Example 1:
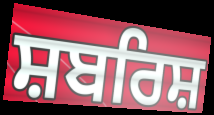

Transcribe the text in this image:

ਸ਼ਬਰਿਸ਼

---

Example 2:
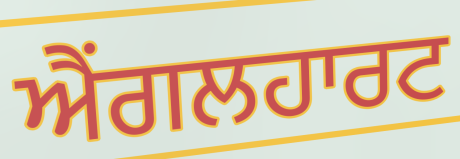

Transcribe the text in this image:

ਐਂਗਲਹਾਰਟ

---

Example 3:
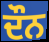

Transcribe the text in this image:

ਦੌਨ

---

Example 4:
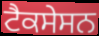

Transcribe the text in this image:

ਟੈਕਸੇਸਨ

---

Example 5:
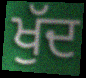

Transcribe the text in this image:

ਖੁੱਦ